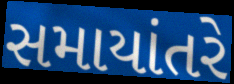
સમાયાંતરે